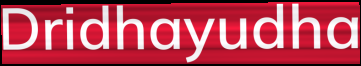
Dridhayudha